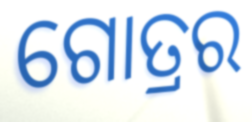
ଗୋତ୍ରର